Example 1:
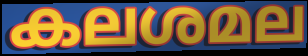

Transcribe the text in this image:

കലശമല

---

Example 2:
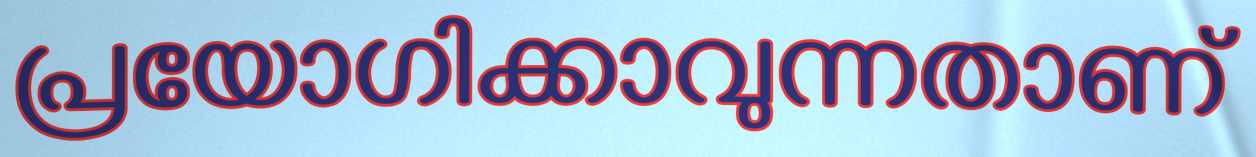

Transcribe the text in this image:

പ്രയോഗിക്കാവുന്നതാണ്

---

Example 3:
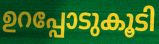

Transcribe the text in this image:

ഉറപ്പോടുകൂടി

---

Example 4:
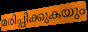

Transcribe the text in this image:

മരിപ്പിക്കുകയും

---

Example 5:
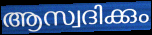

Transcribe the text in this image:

ആസ്വദിക്കും